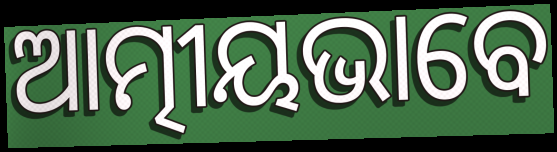
ଆତ୍ମୀୟଭାବେ